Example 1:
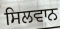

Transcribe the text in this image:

ਸਿਲਵਾਨ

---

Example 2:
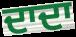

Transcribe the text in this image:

ਦਾਦਾ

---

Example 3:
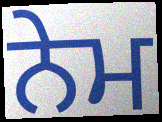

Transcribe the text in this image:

ਨੇਮ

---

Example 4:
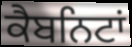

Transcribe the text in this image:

ਕੈਬਨਿਟਾਂ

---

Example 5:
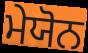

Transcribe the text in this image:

ਮੇਯੋਨ